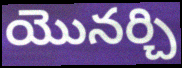
యొనర్చి